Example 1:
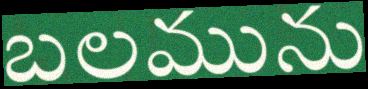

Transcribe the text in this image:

బలమును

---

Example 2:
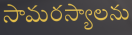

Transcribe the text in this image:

సామరస్యాలను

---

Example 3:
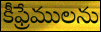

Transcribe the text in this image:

కీఫ్రేములను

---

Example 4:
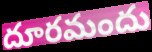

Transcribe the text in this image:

దూరమందు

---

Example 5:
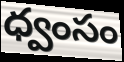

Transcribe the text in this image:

ధ్వంసం